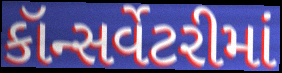
કૉન્સર્વેટરીમાં